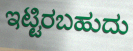
ಇಟ್ಟಿರಬಹುದು